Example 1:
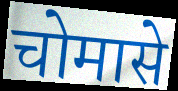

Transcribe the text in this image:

चोमासे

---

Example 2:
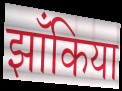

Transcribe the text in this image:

झाँकिया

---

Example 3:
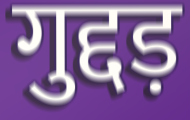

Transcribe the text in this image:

गुद्दड़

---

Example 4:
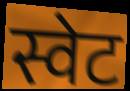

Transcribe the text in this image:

स्वेट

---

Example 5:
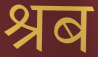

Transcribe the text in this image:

श्रब